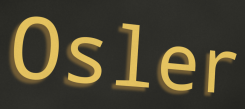
Osler